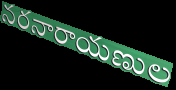
నరనారాయణుల